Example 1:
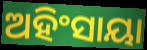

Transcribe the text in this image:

ଅହିଂସାୟା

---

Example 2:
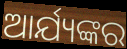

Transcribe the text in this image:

ଆର୍ଯ୍ୟଙ୍କର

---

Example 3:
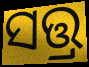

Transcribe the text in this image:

ସତ୍ତ୍ର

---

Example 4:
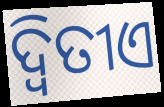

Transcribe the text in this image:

ଦ୍ୱିତୀଏ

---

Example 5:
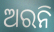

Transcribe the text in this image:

ଅରନି